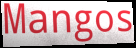
Mangos